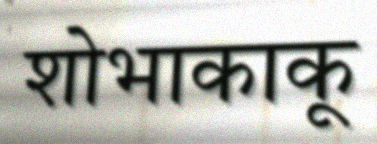
शोभाकाकू